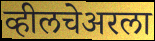
व्हीलचेअरला